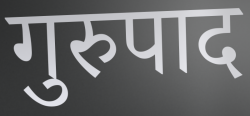
गुरुपाद